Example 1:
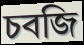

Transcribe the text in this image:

চবজি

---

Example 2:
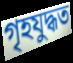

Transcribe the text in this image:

গৃহযুদ্ধত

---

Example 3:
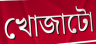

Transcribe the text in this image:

খোজাটো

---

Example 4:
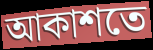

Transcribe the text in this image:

আকাশতে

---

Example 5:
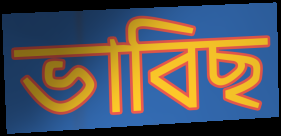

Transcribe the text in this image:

ভাবিছ